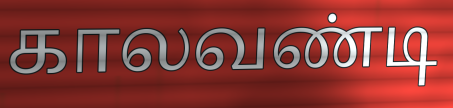
காலவண்டி